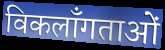
विकलाँगताओं